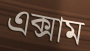
এক্সাম